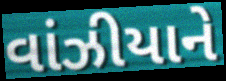
વાંઝીયાને